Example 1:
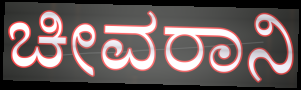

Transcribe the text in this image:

ಚೀವರಾನಿ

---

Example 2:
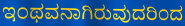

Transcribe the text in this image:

ಇಂಥವನಾಗಿರುವುದರಿಂದ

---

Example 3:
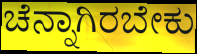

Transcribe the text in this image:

ಚೆನ್ನಾಗಿರಬೇಕು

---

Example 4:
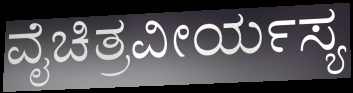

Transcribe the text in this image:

ವೈಚಿತ್ರವೀರ್ಯಸ್ಯ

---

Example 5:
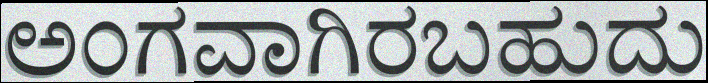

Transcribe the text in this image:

ಅಂಗವಾಗಿರಬಹುದು